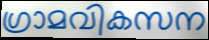
ഗ്രാമവികസന